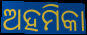
ଅହମିକା